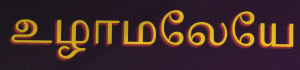
உழாமலேயே